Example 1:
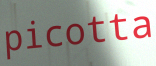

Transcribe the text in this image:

picotta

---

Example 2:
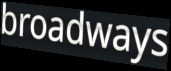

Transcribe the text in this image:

broadways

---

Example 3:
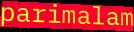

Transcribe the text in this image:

parimalam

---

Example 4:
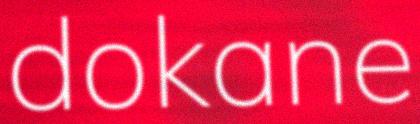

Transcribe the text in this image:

dokane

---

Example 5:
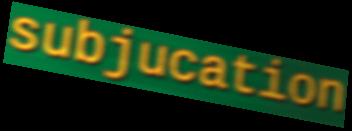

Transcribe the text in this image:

subjucation